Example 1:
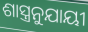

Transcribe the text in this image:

ଶାସ୍ତ୍ରନୁଯାୟୀ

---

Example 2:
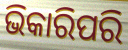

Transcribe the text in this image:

ଭିକାରିପରି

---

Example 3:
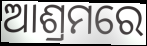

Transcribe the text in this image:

ଆଶ୍ରମରେ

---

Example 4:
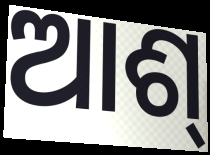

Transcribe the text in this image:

ଆଶ୍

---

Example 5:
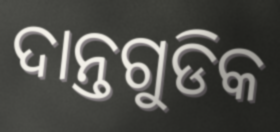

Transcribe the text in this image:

ଦାନ୍ତଗୁଡିକ